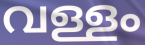
വള്ളം